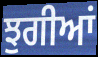
ਝੁਗੀਆਂ